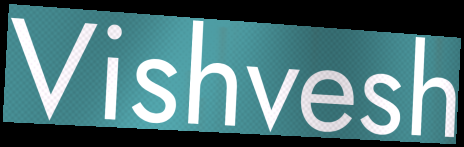
Vishvesh